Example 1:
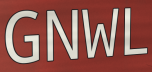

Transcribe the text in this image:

GNWL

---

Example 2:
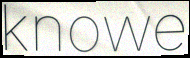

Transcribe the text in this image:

knowe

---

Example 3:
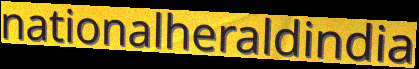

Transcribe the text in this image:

nationalheraldindia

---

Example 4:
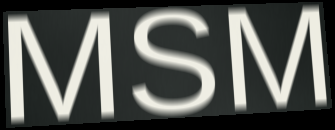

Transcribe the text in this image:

MSM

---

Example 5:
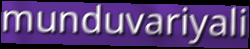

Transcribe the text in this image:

munduvariyali